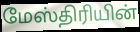
மேஸ்திரியின்